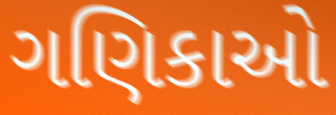
ગણિકાઓ